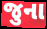
જુના